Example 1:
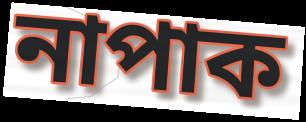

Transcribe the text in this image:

নাপাক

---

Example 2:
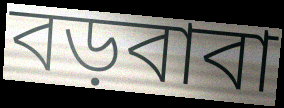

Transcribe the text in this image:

বড়বাবা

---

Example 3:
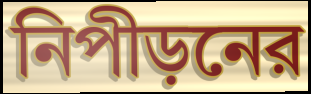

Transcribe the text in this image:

নিপীড়নের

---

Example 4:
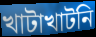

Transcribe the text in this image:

খাটাখাটনি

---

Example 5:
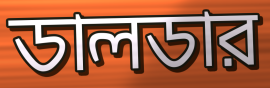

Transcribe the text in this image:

ডালডার